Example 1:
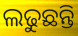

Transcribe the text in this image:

ଲଢୁଛନ୍ତି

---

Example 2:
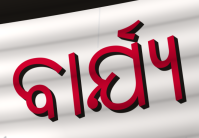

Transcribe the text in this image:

ବାର୍ଯ୍ୟ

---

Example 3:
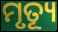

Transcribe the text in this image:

ମୃତ୍ୟୂ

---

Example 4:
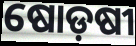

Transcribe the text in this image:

ଷୋଡ଼ଷୀ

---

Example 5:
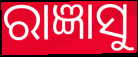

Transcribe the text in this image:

ରାଜ୍ଞାସୁ